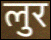
लुर